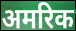
अमरिक